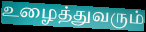
உழைத்துவரும்